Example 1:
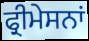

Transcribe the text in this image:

ਫ੍ਰੀਮੇਸਨਾਂ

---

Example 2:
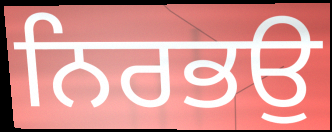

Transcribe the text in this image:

ਨਿਰਭਉ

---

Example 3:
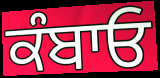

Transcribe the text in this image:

ਕੰਬਾਓ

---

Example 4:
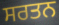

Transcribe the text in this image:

ਸਰਤਨ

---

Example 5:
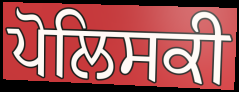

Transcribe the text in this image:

ਪੋਲਿਸਕੀ